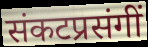
संकटप्रसंगीं